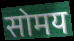
सोमय